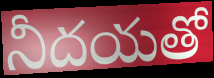
నీదయతో